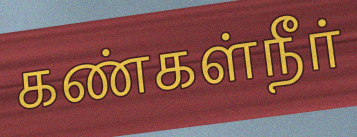
கண்கள்நீர்